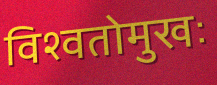
विश्वतोमुखः